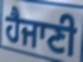
ਹੈਜਾਣੀ